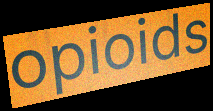
opioids